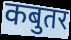
कबुतर